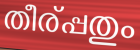
തീര്പ്പതും